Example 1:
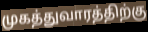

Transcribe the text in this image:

முகத்துவாரத்திற்கு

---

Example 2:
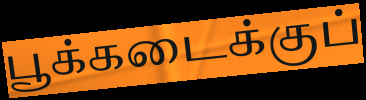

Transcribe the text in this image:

பூக்கடைக்குப்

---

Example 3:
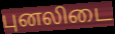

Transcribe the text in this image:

புனலிடை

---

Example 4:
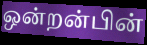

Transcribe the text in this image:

ஒன்றன்பின்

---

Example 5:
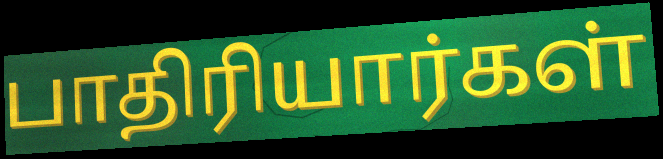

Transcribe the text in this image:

பாதிரியார்கள்